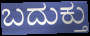
ಬದುಕ್ತು